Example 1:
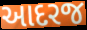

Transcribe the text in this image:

આદરજ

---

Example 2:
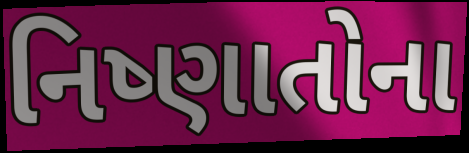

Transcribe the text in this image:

નિષ્ણાતોના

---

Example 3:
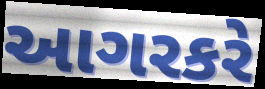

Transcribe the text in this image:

આગરકરે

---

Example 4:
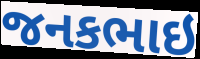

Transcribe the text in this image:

જનકભાઇ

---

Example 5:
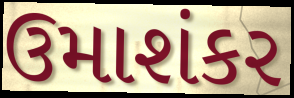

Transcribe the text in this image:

ઉમાશંકર